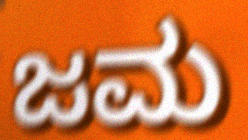
ಜಮ